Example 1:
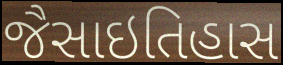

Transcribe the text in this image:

જૈસાઇતિહાસ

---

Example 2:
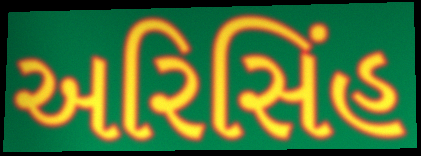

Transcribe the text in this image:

અરિસિંહ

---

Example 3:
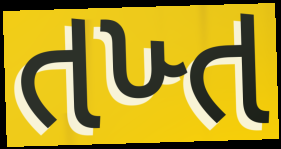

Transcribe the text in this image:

તખ્ત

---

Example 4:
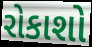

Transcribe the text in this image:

રોકાશો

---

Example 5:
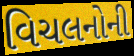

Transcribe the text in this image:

વિચલનોની